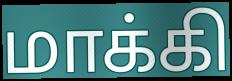
மாக்கி